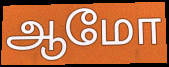
ஆமோ